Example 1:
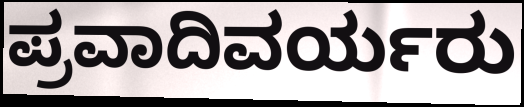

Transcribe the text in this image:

ಪ್ರವಾದಿವರ್ಯರು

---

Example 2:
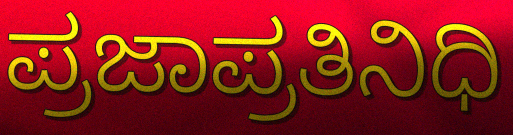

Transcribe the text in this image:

ಪ್ರಜಾಪ್ರತಿನಿಧಿ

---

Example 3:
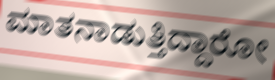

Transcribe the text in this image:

ಮಾತನಾಡುತ್ತಿದ್ದಾರೋ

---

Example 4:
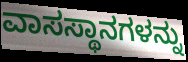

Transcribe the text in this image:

ವಾಸಸ್ಥಾನಗಳನ್ನು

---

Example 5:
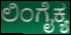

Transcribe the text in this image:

ಲಿಂಗೈಕ್ಯ